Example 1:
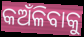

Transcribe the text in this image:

କଅଁଳିବାକୁ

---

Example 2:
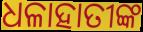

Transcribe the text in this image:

ଧଳାହାତୀଙ୍କ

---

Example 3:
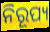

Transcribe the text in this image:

ନିରୂପ୍ୟ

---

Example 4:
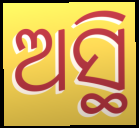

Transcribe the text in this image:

ଅସ୍ଥି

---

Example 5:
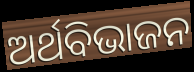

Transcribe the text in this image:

ଅର୍ଥବିଭାଜନ